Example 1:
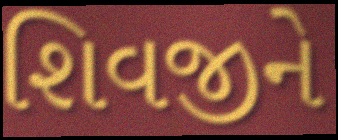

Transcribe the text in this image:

શિવજીને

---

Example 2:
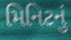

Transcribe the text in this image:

મિનિટનું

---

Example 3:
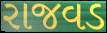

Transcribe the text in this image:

રાજવડ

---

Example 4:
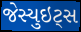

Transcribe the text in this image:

જેસ્યુઇટ્સ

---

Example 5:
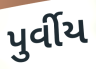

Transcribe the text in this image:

પુર્વીય